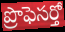
ప్రొఫెసర్తో